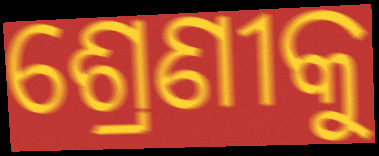
ଶ୍ରେଣୀକୁ